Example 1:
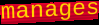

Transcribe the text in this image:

manages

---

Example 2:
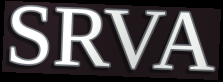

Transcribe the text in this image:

SRVA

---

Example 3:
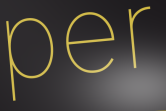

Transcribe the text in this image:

per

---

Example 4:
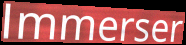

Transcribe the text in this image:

Immerser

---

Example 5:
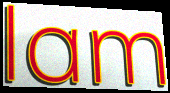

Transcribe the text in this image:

Iam